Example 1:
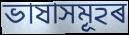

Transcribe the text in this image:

ভাষাসমূহৰ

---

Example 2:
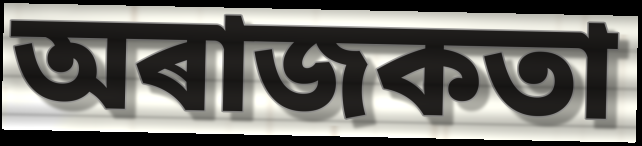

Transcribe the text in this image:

অৰাজকতা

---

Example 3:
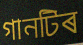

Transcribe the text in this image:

গানটিৰ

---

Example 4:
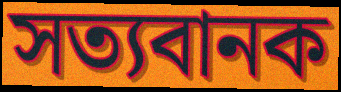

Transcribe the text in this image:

সত্যবানক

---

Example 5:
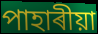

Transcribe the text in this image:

পাহাৰীয়া